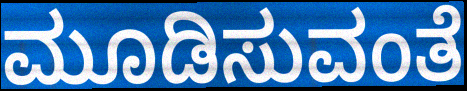
ಮೂಡಿಸುವಂತೆ